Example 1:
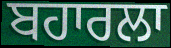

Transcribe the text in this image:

ਬਹਾਰਲਾ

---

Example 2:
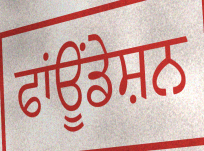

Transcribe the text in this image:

ਫਾਂਊਂਡੇਸ਼ਨ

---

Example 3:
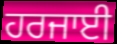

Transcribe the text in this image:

ਹਰਜਾਈ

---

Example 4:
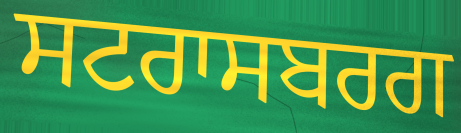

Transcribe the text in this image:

ਸਟਰਾਸਬਰਗ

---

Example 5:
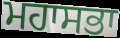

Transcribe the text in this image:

ਮਹਾਸਭਾ